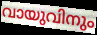
വായുവിനും